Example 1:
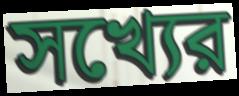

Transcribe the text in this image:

সখ্যের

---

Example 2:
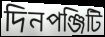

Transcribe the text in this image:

দিনপঞ্জিটি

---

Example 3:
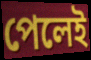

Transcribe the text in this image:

পেলেই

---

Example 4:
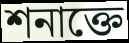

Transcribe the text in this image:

শনাক্তে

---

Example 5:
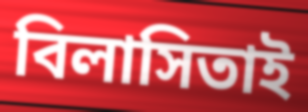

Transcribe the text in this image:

বিলাসিতাই